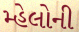
મ્હેલોની